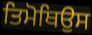
ਤਿਮੋਥਿਉਸ